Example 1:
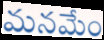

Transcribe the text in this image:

మనమేం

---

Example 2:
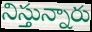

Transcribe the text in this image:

నిస్తున్నారు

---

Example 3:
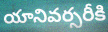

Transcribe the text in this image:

యానివర్సరీకి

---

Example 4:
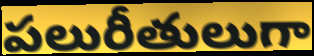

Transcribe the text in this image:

పలురీతులుగా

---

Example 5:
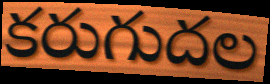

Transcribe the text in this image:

కరుగుదల